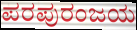
ಪರಪುರಂಜಯ